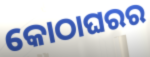
କୋଠାଘରର